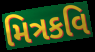
મિત્રકવિ